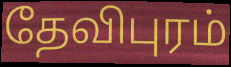
தேவிபுரம்